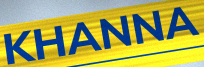
KHANNA